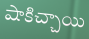
షాకిచ్చాయి